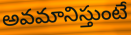
అవమానిస్తుంటే